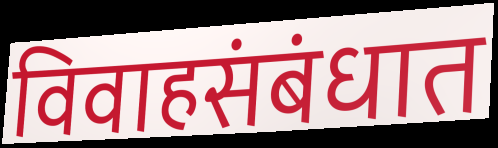
विवाहसंबंधात